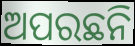
ଅପରଛନି